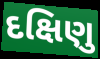
દક્ષિણુ